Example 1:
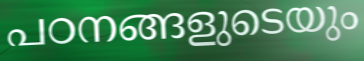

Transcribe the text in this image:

പഠനങ്ങളുടെയും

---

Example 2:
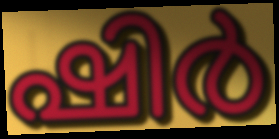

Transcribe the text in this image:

ഷിർ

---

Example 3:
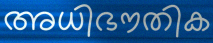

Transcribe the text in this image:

അധിഭൗതിക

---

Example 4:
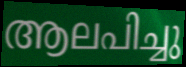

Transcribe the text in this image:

ആലപിച്ചു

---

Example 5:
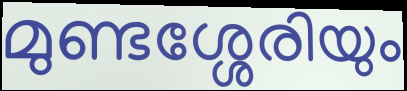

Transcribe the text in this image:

മുണ്ടശ്ശേരിയും